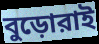
বুড়োরাই